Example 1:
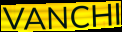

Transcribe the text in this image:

VANCHI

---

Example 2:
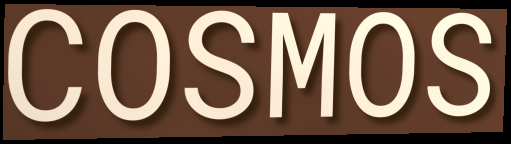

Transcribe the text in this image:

COSMOS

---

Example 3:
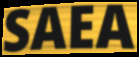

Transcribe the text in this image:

SAEA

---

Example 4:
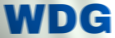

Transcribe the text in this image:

WDG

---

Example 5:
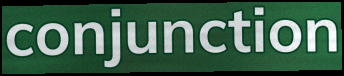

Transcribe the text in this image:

conjunction